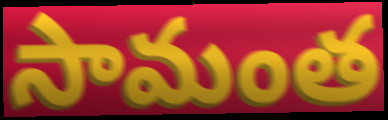
సామంత